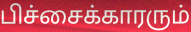
பிச்சைக்காரரும்